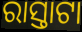
ରାସ୍ତାଟା